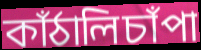
কাঁঠালিচাঁপা